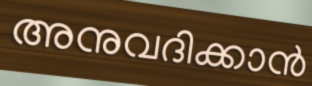
അനുവദിക്കാൻ